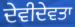
ਦੇਵੀਦੇਵਤਾ